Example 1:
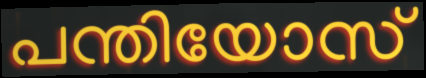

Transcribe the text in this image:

പന്തിയോസ്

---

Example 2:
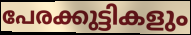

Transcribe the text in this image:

പേരക്കുട്ടികളും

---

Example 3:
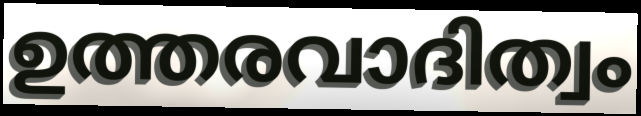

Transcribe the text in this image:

ഉത്തരവാദിത്വം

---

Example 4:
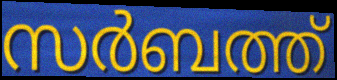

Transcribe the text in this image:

സർബത്ത്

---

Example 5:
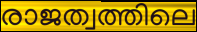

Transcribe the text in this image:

രാജത്വത്തിലെ